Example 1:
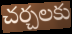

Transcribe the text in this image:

చర్చలకు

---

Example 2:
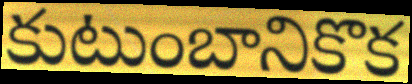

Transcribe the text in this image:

కుటుంబానికొక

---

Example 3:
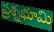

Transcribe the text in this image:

ప్రశ్నభూమి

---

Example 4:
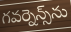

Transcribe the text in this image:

గవర్నెన్స్‌ను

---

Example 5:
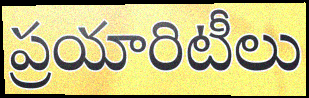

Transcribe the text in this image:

ప్రయారిటీలు